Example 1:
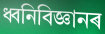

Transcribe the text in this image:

ধ্বনিবিজ্ঞানৰ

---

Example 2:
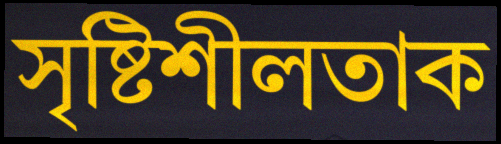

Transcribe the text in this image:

সৃষ্টিশীলতাক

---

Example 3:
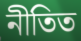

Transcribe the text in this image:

নীতিত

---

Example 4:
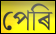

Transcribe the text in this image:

পেৰি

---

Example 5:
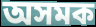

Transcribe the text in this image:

অসমক